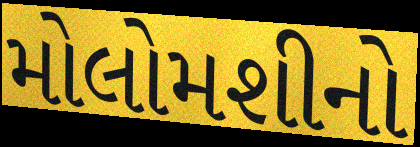
મોલોમશીનો